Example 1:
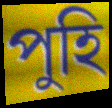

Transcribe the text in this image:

পুহি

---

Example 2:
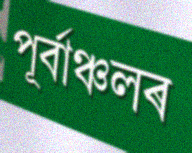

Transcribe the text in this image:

পূৰ্বাঞ্চলৰ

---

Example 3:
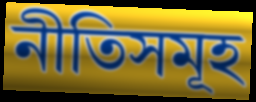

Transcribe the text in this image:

নীতিসমূহ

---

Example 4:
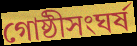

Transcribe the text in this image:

গোষ্ঠীসংঘৰ্ষ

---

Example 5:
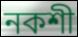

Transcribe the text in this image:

নকশী